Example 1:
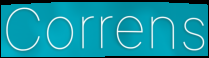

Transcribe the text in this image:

Correns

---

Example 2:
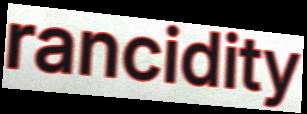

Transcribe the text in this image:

rancidity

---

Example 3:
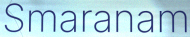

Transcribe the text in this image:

Smaranam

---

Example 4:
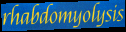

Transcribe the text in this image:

rhabdomyolysis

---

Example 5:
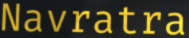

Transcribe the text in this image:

Navratra